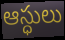
ఆస్ధులు